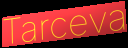
Tarceva